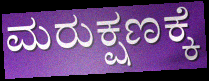
ಮರುಕ್ಷಣಕ್ಕೆ